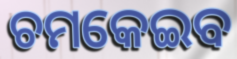
ଚମକେଇବ